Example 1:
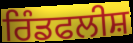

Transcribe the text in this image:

ਰਿੰਡਫਲੀਸ਼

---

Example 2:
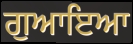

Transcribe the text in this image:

ਗੁਆਇਆ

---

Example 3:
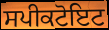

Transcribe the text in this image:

ਸਪੀਕਟੋਇਟ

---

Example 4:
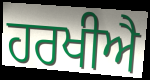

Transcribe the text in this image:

ਹਰਖੀਐ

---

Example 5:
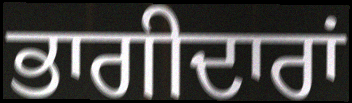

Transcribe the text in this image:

ਭਾਗੀਦਾਰਾਂ